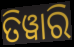
ତିୱାରି